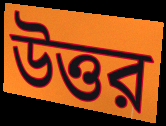
উত্তর